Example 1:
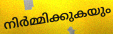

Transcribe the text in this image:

നിർമ്മിക്കുകയും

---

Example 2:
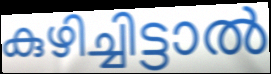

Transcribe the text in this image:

കുഴിച്ചിട്ടാൽ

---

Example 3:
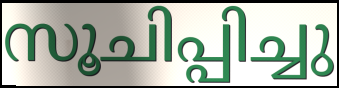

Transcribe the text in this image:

സൂചിപ്പിച്ചു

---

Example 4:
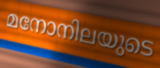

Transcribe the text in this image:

മനോനിലയുടെ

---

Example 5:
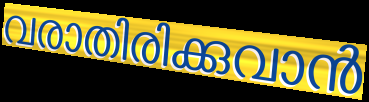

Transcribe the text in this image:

വരാതിരിക്കുവാൻ